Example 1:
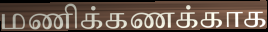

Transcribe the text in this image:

மணிக்கணக்காக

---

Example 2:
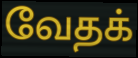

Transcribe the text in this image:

வேதக்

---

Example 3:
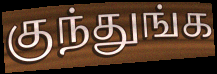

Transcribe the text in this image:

குந்துங்க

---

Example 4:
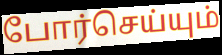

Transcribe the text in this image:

போர்செய்யும்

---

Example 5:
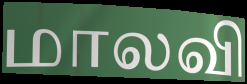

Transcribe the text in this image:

மாலவி